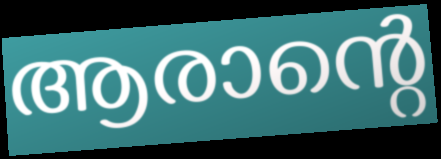
ആരാന്റെ